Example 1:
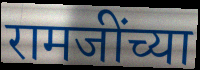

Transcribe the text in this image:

रामजींच्या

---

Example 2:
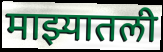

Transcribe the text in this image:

माझ्यातली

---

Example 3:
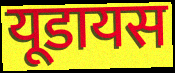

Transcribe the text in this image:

यूडायस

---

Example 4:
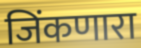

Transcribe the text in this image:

जिंकणारा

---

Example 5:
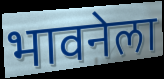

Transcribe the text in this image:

भावनेला